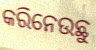
କରିନେଉଛୁ